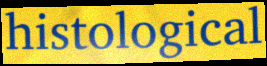
histological